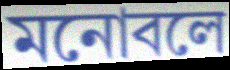
মনোবলে